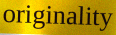
originality